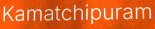
Kamatchipuram